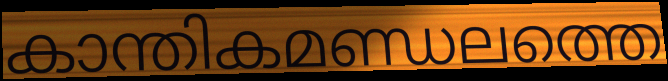
കാന്തികമണ്ഡലത്തെ